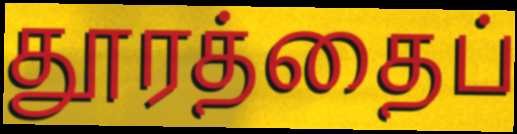
தூரத்தைப்